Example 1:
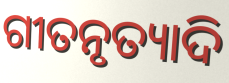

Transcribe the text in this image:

ଗୀତନୃତ୍ୟାଦି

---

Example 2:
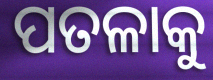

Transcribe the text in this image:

ପତଳାକୁ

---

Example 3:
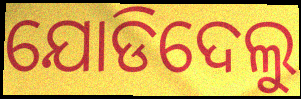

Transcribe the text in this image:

ଯୋଡିଦେଲୁ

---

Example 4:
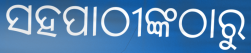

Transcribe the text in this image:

ସହପାଠୀଙ୍କଠାରୁ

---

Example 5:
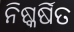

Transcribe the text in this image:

ନିଷ୍କର୍ଷିତ